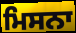
ਮਿਸਨਾ